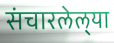
संचारलेल्या